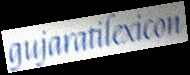
gujaratilexicon